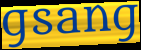
gsang